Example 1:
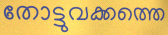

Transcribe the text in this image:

തോട്ടുവക്കത്തെ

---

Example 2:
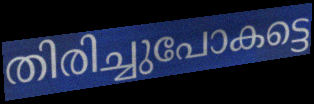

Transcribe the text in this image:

തിരിച്ചുപോകട്ടെ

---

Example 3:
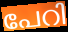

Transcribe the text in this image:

പേറി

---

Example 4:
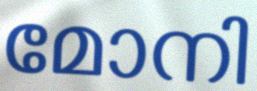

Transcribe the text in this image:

മോനി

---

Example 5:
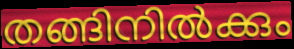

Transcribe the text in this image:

തങ്ങിനിൽക്കും